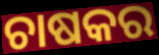
ଚାଷକର